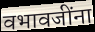
वभावजींना